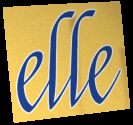
elle